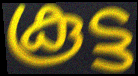
കൂട്ട